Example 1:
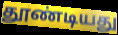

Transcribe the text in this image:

தூண்டியது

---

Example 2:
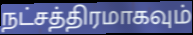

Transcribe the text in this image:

நட்சத்திரமாகவும்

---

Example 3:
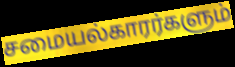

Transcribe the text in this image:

சமையல்காரர்களும்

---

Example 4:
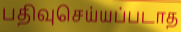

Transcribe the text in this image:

பதிவுசெய்யப்படாத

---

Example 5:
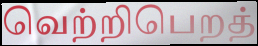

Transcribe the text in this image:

வெற்றிபெறத்